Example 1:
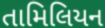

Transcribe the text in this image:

તામિલિયન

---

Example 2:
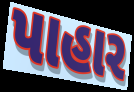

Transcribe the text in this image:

પાહાર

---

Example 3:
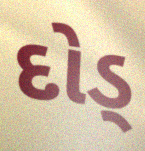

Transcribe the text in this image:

દોડ્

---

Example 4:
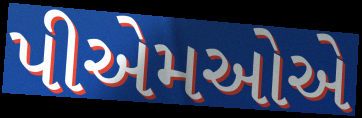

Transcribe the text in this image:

પીએમઓએ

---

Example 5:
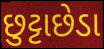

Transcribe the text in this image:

છુટ્ટાછેડા